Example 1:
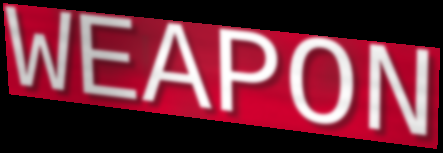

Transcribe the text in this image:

WEAPON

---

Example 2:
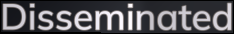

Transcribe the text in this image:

Disseminated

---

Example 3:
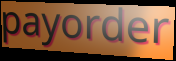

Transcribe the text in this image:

payorder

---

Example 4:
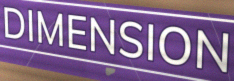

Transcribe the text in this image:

DIMENSION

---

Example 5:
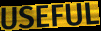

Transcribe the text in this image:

USEFUL